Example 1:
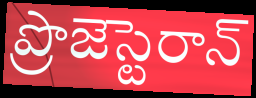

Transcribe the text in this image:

ప్రొజెస్టెరాన్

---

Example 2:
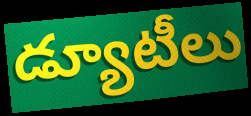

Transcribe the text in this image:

డ్యూటీలు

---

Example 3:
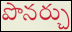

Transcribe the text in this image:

పొనర్చు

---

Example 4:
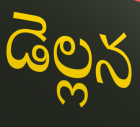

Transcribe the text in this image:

డెల్లన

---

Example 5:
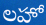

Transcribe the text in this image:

లహో